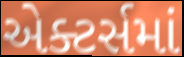
એક્ટર્સમાં